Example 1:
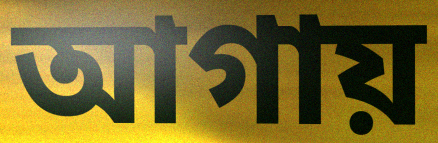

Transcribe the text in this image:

আগায়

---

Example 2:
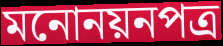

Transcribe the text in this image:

মনোনয়নপত্র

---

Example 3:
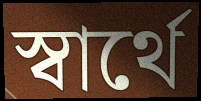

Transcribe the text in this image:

স্বার্থে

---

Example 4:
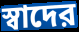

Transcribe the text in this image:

স্বাদের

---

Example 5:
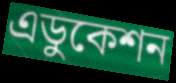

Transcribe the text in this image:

এডুকেশন